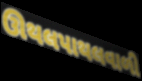
ઊથલપાથલવાળી